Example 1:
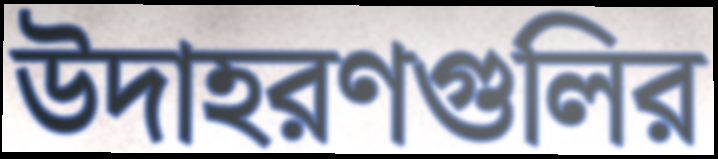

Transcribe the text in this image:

উদাহরণগুলির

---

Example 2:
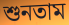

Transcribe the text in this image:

শুনতাম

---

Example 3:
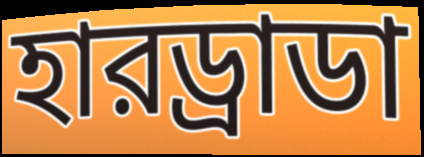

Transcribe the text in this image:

হারড্রাডা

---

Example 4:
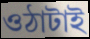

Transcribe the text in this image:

ওঠাটাই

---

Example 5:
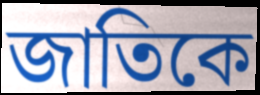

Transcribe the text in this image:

জাতিকে